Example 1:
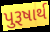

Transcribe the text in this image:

પુરૂષાર્થ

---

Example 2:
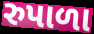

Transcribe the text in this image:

રુપાળા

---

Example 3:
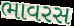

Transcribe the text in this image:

ભાવરસ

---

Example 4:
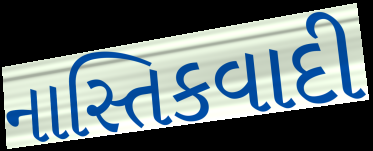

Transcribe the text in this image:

નાસ્તિકવાદી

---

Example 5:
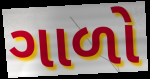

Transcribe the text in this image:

ગાળો